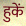
हुकें